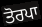
ਤੋਰਪਾ